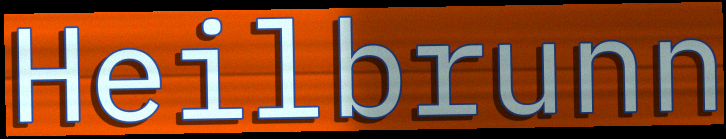
Heilbrunn